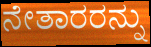
ನೇತಾರರನ್ನು